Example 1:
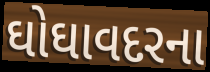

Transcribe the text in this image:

ઘોઘાવદરના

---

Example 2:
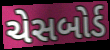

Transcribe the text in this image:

ચેસબોર્ડ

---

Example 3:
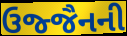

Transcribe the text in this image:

ઉજ્જૈનની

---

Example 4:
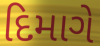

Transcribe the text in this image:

દિમાગે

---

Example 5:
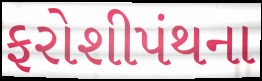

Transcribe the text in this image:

ફરોશીપંથના